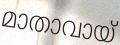
മാതാവായ്